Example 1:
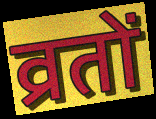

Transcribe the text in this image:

व्रतों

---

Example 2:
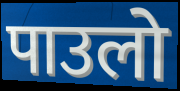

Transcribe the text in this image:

पाउलो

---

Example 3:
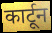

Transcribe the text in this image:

कार्टून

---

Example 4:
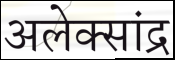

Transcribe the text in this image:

अलेक्सांद्र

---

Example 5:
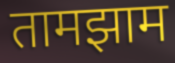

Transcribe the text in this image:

तामझाम